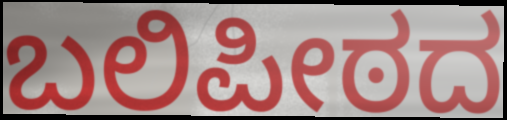
ಬಲಿಪೀಠದ